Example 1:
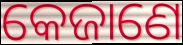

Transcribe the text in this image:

କେଜାଣେ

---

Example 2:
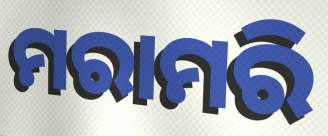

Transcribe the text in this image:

ମରାମରି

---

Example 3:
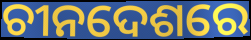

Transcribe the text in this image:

ଚୀନଦେଶରେ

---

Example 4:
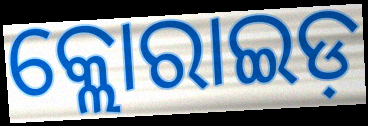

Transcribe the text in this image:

କ୍ଲୋରାଇଡ଼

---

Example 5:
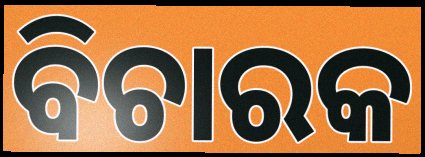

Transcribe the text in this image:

ବିଚାରକ